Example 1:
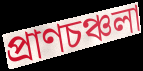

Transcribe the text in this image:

প্রাণচঞ্চলা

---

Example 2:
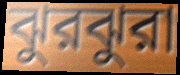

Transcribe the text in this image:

ঝুরঝুরা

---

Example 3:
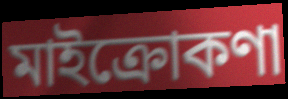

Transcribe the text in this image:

মাইক্রোকণা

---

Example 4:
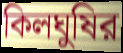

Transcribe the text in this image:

কিলঘুষির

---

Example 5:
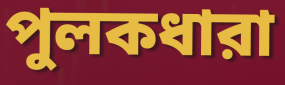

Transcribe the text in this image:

পুলকধারা